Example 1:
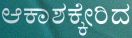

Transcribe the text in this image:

ಆಕಾಶಕ್ಕೇರಿದ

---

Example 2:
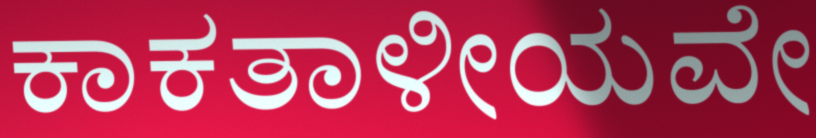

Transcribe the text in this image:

ಕಾಕತಾಳೀಯವೇ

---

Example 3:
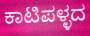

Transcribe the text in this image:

ಕಾಟಿಪಳ್ಳದ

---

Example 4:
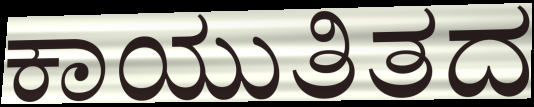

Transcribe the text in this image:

ಕಾಯುತಿತದ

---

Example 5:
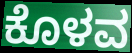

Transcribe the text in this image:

ಕೊಳವ